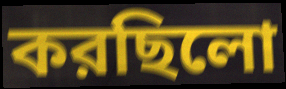
করছিলো